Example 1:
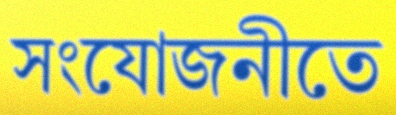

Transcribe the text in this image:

সংযোজনীতে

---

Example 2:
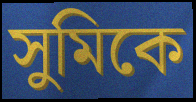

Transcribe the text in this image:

সুমিকে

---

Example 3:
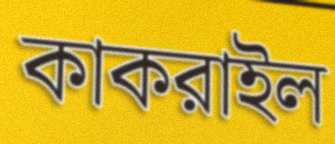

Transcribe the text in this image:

কাকরাইল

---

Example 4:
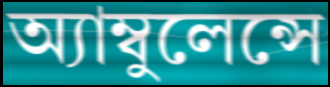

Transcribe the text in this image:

অ্যাম্বুলেন্সে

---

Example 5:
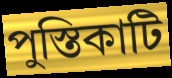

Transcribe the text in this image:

পুস্তিকাটি